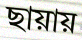
ছায়ায়